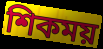
শিকময়